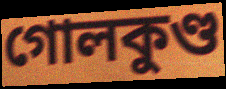
গোলকুণ্ড